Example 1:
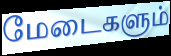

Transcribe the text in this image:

மேடைகளும்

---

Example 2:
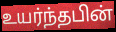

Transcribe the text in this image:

உயர்ந்தபின்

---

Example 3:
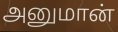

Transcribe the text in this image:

அனுமான்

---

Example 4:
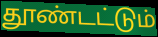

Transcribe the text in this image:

தூண்டட்டும்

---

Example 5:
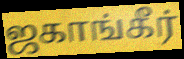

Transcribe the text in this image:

ஜகாங்கீர்